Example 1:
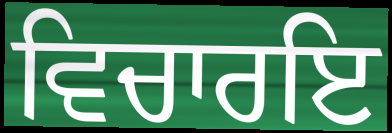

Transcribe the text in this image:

ਵਿਚਾਰਇ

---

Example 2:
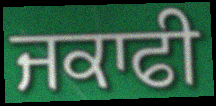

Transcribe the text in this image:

ਜਕਾਫੀ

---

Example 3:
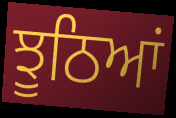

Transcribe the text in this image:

ਝੂਠਿਆਂ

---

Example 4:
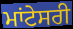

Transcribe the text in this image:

ਮਾਂਟੇਸਰੀ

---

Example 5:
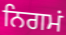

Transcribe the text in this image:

ਨਿਗਮਂ